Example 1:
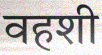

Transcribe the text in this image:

वहशी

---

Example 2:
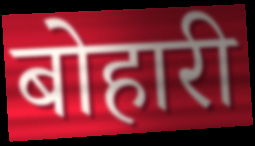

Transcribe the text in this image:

बोहारी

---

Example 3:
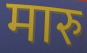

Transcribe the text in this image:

मारु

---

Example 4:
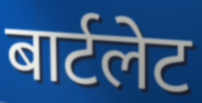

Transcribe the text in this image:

बार्टलेट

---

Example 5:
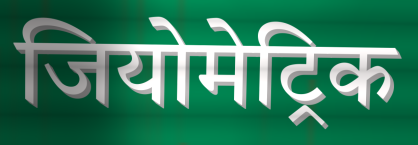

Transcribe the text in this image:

जियोमेट्रिक